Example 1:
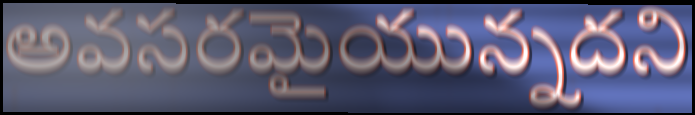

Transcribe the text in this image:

అవసరమైయున్నదని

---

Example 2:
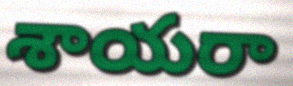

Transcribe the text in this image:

శాయరా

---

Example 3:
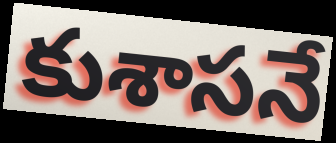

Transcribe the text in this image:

కుశాసనే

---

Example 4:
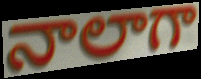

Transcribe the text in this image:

నాలాగా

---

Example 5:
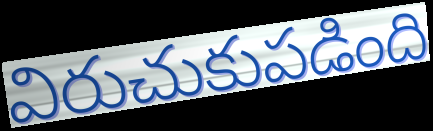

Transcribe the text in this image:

విరుచుకుపడింది